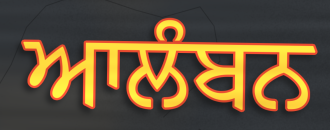
ਆਲੰਬਨ